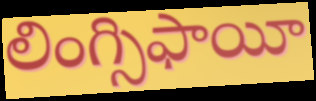
లింగ్సిఫాయీ